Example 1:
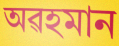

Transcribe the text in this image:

অৱহমান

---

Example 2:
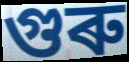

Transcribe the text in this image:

গুৰু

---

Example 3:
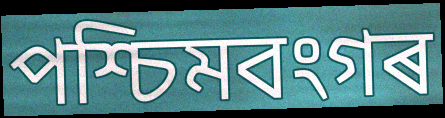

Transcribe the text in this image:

পশ্চিমবংগৰ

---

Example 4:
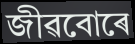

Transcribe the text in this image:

জীৱবোৰে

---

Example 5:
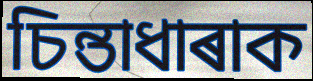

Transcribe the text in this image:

চিন্তাধাৰাক